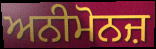
ਅਨੀਮੋਨਜ਼